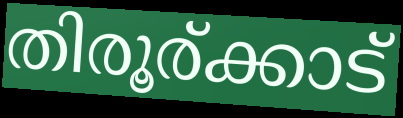
തിരൂര്ക്കാട്